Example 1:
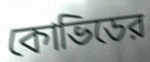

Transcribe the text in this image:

কোভিডের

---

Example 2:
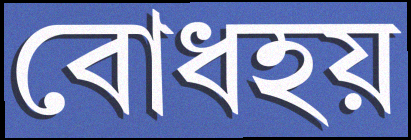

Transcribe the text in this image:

বোধহয়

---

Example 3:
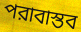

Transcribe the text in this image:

পরাবাস্তব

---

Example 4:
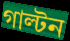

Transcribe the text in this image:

গাল্টন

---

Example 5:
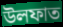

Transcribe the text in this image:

উলফাত